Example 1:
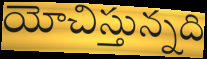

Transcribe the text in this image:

యోచిస్తున్నది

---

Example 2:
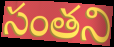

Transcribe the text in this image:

సంతని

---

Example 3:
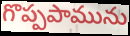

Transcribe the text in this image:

గొప్పపామును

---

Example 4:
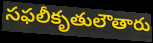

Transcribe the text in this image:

సఫలీకృతులౌతారు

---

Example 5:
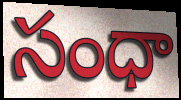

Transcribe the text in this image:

సంధా